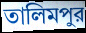
তালিমপুর